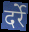
दर्रे